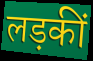
लड़कीं